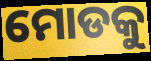
ମୋଡକୁ